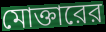
মোক্তারের